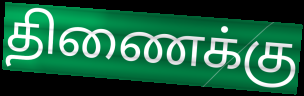
திணைக்கு